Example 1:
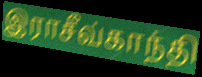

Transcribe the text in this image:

இராசீவ்காந்தி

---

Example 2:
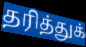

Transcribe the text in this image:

தரித்துக்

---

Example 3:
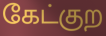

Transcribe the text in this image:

கேட்குற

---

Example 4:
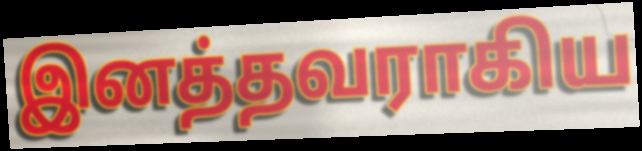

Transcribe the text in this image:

இனத்தவராகிய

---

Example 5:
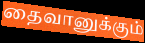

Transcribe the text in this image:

தைவானுக்கும்